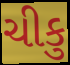
ચીકુ